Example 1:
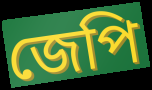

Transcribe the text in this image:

জেপি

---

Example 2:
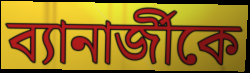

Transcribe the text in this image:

ব্যানার্জীকে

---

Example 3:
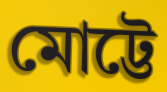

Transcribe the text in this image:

মোট্টে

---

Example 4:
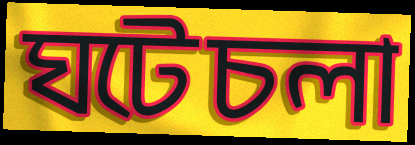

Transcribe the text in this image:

ঘটেচলা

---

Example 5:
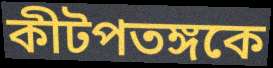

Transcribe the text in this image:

কীটপতঙ্গকে